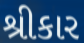
શ્રીકાર